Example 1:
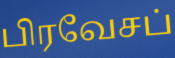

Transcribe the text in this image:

பிரவேசப்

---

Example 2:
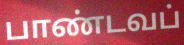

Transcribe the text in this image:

பாண்டவப்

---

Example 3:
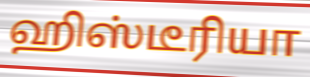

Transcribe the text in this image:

ஹிஸ்டீரியா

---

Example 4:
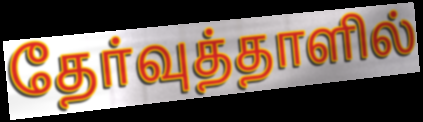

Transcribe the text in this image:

தேர்வுத்தாளில்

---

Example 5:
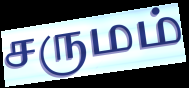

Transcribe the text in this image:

சருமம்